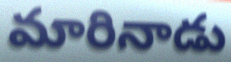
మారినాడు